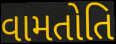
વામતોતિ